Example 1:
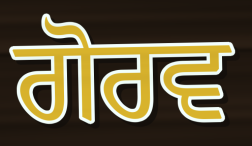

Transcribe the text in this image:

ਗੋਰਵ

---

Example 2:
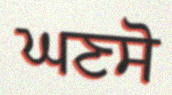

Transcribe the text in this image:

ਘਣਸੋ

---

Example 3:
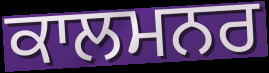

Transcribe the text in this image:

ਕਾਲਮਨਰ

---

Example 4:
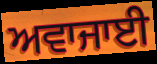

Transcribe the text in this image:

ਅਵਾਜਾਈ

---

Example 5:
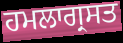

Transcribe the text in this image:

ਹਮਲਾਗ੍ਰਸਤ